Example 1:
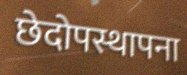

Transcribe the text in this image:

छेदोपस्थापना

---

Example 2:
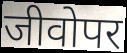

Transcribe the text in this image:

जीवोपर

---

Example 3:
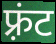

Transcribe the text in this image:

फ़्रंट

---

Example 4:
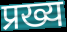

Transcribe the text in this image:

प्रख्य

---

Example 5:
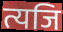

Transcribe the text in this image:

त्यजि